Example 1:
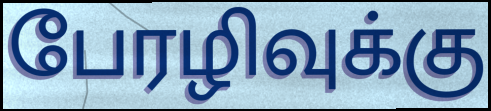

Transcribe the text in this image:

பேரழிவுக்கு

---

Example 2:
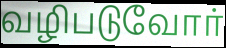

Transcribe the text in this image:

வழிபடுவோர்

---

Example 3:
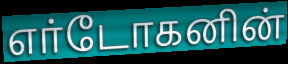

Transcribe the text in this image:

எர்டோகனின்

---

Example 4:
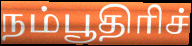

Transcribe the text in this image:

நம்பூதிரிச்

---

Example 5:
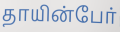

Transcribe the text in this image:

தாயின்பேர்